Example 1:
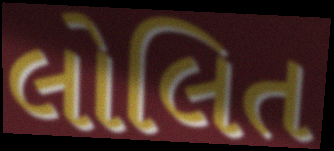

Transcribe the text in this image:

લોલિત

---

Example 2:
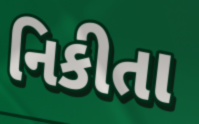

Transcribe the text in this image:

નિકીતા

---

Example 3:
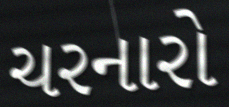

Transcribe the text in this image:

ચરનારો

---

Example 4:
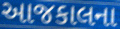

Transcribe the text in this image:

આજકાલના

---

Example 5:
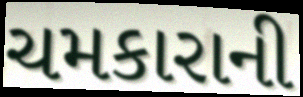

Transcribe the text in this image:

ચમકારાની